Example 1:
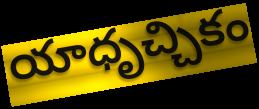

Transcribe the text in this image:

యాధృచ్చికం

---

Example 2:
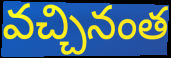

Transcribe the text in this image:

వచ్చినంత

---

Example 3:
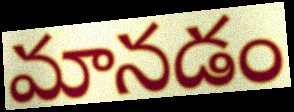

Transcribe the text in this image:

మానడం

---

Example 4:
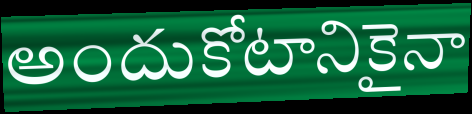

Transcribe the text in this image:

అందుకోటానికైనా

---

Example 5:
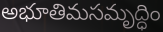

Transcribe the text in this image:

అభూతిమసమృద్ధిం